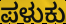
ಪಳುಕು